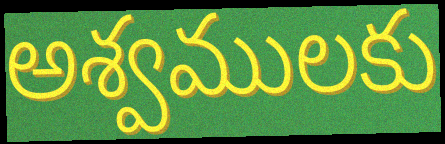
అశ్వములకు